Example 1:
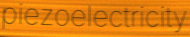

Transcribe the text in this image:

piezoelectricity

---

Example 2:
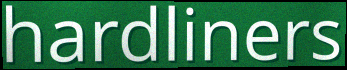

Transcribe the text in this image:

hardliners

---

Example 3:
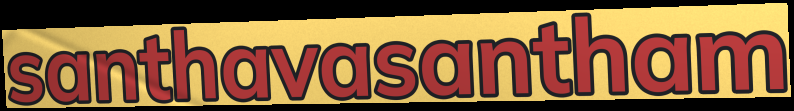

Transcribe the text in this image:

santhavasantham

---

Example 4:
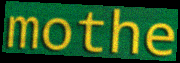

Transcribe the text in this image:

mothe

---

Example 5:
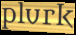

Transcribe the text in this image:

plurk